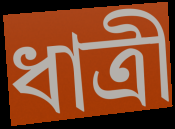
ধাত্ৰী